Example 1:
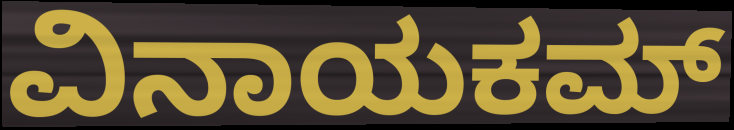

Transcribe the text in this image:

ವಿನಾಯಕಮ್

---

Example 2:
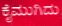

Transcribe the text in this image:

ಕೈಮುಗಿದು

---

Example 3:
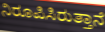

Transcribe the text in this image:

ನಿರೂಪಿಸಿರುತ್ತಾನೆ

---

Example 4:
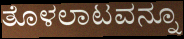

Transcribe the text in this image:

ತೊಳಲಾಟವನ್ನೂ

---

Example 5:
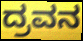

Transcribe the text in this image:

ದ್ರವನ